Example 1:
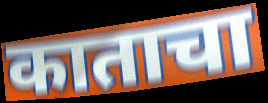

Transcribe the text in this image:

काताचा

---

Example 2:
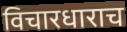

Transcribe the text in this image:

विचारधाराच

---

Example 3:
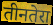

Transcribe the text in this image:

तीनतेरा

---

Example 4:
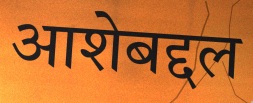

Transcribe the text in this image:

आशेबद्दल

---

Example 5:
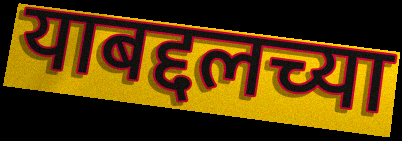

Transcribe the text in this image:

याबद्दलच्या